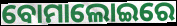
ବୋମାଲୋଇରେ